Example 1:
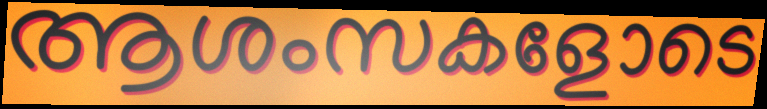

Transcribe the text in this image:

ആശംസകളോടെ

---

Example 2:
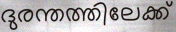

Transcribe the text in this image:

ദുരന്തത്തിലേക്ക്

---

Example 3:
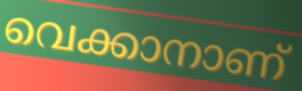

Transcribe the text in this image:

വെക്കാനാണ്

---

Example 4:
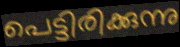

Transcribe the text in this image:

പെട്ടിരിക്കുന്നു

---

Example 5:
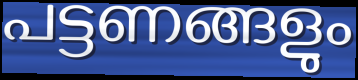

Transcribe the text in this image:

പട്ടണങ്ങളും